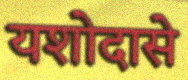
यशोदासे